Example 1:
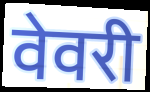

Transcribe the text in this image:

वेवरी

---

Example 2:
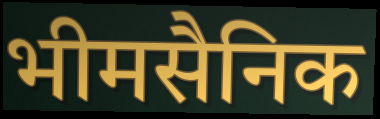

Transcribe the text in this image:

भीमसैनिक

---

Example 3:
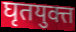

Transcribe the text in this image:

घृतयुक्त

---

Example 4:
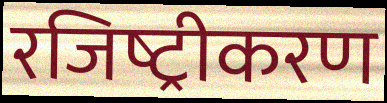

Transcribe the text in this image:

रजिष्ट्रीकरण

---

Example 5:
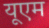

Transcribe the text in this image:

यूएम